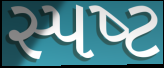
સ્પષ્‍ટ